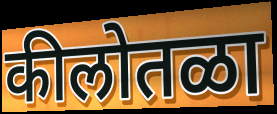
कीलोतळा